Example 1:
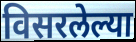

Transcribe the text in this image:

विसरलेल्या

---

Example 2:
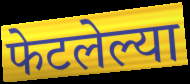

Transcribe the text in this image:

फेटलेल्या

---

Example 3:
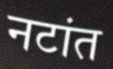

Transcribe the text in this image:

नटांत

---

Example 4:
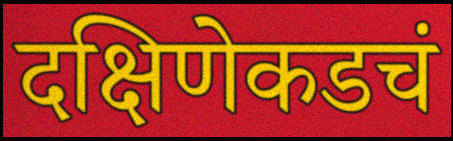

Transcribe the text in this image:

दक्षिणेकडचं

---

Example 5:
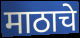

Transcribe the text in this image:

माठाचे